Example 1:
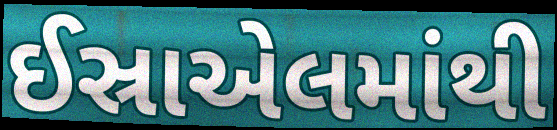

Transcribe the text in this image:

ઈસ્રાએલમાંથી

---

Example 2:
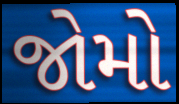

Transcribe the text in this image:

જોમો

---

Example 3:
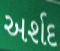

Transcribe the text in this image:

અર્શદ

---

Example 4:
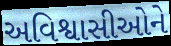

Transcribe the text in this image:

અવિશ્વાસીઓને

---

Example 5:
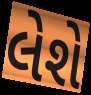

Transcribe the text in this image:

લેશે